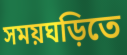
সময়ঘড়িতে